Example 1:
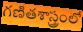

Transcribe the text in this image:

గణితశాస్త్రంలో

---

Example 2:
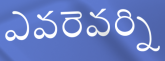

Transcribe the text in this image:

ఎవరెవర్ని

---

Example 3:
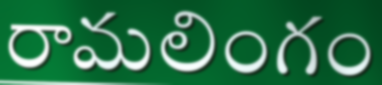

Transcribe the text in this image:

రామలింగం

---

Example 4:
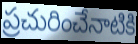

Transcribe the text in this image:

ప్రచురించేనాటికి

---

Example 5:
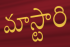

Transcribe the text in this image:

మాస్టారి